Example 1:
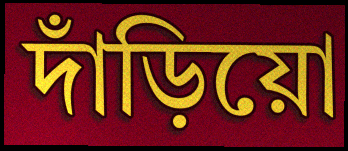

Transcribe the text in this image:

দাঁড়িয়ো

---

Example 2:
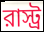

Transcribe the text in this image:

রাস্ট্র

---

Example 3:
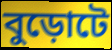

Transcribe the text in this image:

বুড়োটে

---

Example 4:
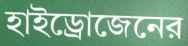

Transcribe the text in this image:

হাইড্রোজেনের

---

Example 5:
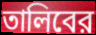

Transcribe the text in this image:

তালিবের